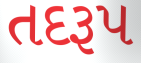
તદરૂપ